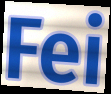
Fei